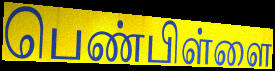
பெண்பிள்ளை